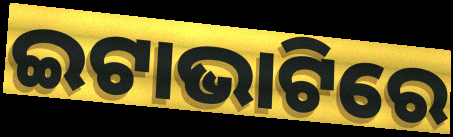
ଇଟାଭାଟିରେ